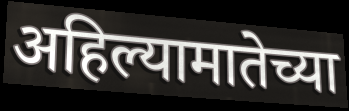
अहिल्यामातेच्या